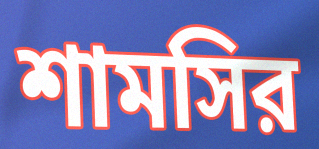
শামসির